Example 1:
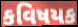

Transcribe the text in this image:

કવિષયક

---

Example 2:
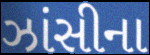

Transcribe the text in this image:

ઝાંસીના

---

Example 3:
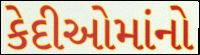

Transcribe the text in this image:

કેદીઓમાંનો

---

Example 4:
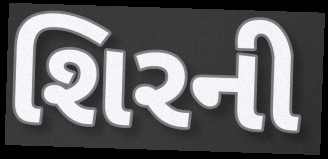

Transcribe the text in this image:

શિરની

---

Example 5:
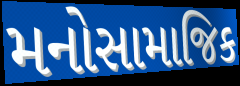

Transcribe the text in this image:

મનોસામાજિક